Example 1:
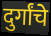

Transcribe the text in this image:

दुर्गांचे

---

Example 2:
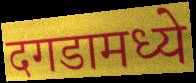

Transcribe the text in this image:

दगडामध्ये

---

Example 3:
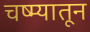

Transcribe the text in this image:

चष्म्यातून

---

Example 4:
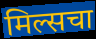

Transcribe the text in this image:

मिल्सचा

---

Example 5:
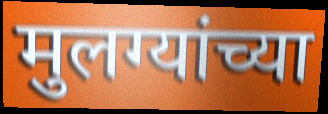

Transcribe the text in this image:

मुलग्यांच्या